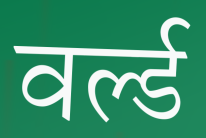
वर्ल्ड